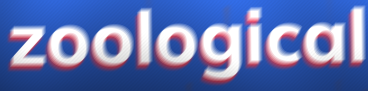
zoological